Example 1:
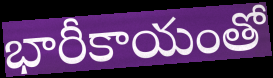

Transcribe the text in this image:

భారీకాయంతో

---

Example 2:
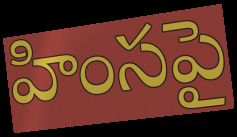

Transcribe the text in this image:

హింసపై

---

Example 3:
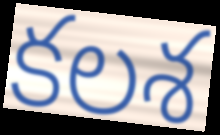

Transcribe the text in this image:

కలశ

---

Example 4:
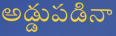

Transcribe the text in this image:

అడ్డుపడినా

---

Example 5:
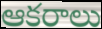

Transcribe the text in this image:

ఆకరాలు